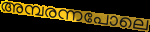
അമ്പരന്നപോലെ